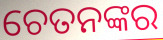
ଚେତନଙ୍କର